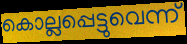
കൊല്ലപ്പെട്ടുവെന്ന്